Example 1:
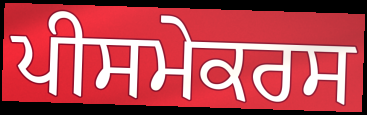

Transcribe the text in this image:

ਪੀਸਮੇਕਰਸ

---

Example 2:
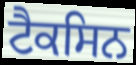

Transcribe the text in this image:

ਟੈਕਸਿਨ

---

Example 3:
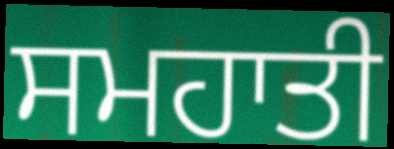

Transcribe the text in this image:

ਸਮਹਾਤੀ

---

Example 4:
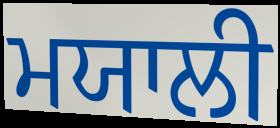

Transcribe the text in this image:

ਮਯਾਲੀ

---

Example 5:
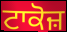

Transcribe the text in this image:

ਟਾਕੋਜ਼